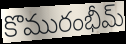
కొమురంభీమ్